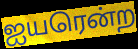
ஐயரென்ற